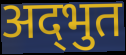
अद्‌भुत